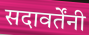
सदावर्तेंनी